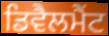
ਡਿਵੈਲਮੈਂਟ